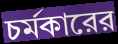
চর্মকারের